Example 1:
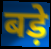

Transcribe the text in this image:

बड़े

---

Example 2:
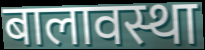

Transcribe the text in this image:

बालावस्था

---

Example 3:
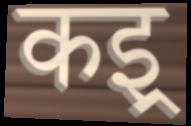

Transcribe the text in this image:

कइ्र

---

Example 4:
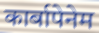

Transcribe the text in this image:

कार्बापेनेम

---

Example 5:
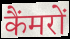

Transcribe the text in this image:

कैंमरों